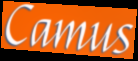
Camus